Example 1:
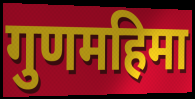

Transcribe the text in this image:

गुणमहिमा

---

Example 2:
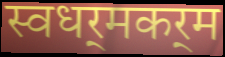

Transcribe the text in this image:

स्वधर्मकर्म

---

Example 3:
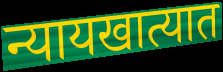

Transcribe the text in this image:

न्यायखात्यात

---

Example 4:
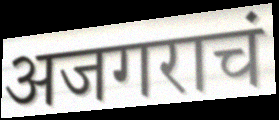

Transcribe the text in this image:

अजगराचं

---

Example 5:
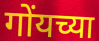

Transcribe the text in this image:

गोंयच्या